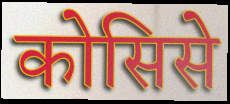
कोसिसे